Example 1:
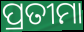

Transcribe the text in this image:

ପ୍ରତୀମା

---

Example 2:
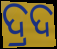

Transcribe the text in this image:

ଦ୍ରଦ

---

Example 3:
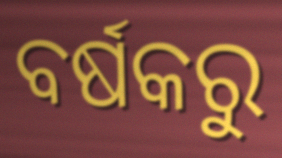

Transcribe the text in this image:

ବର୍ଷକରୁ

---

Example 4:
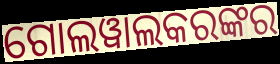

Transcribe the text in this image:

ଗୋଲୱାଲକରଙ୍କର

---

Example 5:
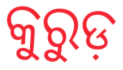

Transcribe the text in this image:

କୁରୁଡ଼